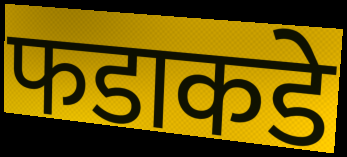
फडाकडे